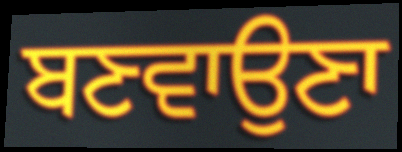
ਬਣਵਾਉਣਾ